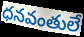
ధనవంతులే